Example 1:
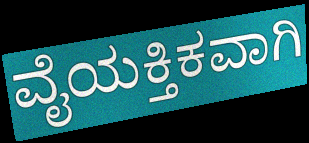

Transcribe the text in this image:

ವೈಯಕ್ತಿಕವಾಗಿ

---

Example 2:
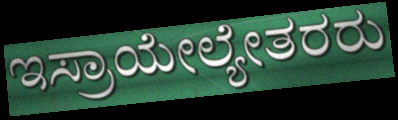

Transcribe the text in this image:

ಇಸ್ರಾಯೇಲ್ಯೇತರರು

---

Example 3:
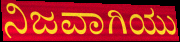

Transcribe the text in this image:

ನಿಜವಾಗಿಯು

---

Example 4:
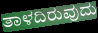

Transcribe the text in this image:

ತಾಳದಿರುವುದು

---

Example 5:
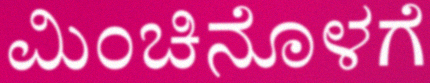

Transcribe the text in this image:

ಮಿಂಚಿನೊಳಗೆ